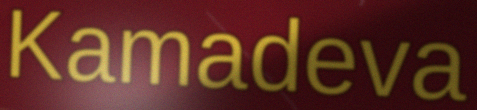
Kamadeva